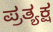
ಪ್ರತ್ಯಕ್ಷ